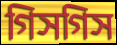
গিসগিস